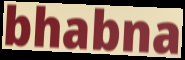
bhabna